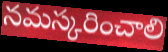
నమస్కరించాలి